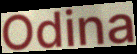
Odina